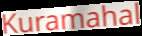
Kuramahal